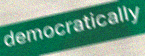
democratically